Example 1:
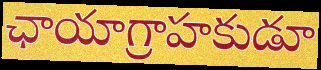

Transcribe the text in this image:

ఛాయాగ్రాహకుడూ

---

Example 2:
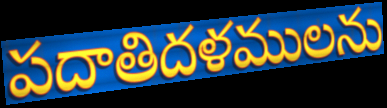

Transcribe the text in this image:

పదాతిదళములను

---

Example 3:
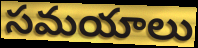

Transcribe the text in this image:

సమయాలు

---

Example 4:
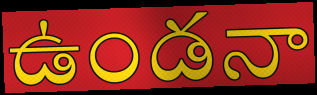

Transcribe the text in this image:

ఉండనా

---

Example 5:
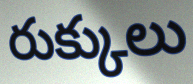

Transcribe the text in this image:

రుక్కులు